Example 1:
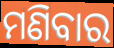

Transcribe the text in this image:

ମଣିବାର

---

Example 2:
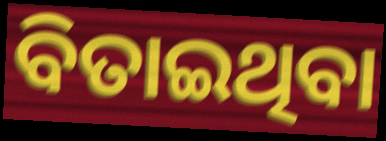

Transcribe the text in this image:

ବିତାଇଥିବା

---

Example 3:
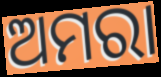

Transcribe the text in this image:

ଅମରା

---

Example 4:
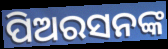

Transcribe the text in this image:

ପିଅରସନଙ୍କ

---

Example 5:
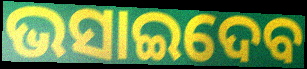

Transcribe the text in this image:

ଭସାଇଦେବ